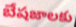
బేషజాలకు